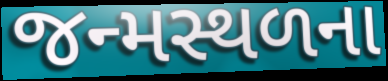
જન્મસ્થળના